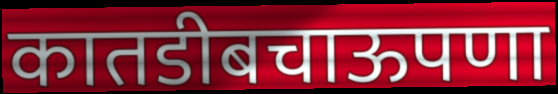
कातडीबचाऊपणा